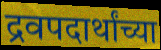
द्रवपदार्थांच्या